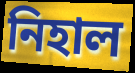
নিহাল